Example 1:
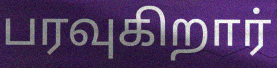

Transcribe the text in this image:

பரவுகிறார்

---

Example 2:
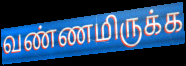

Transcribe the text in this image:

வண்ணமிருக்க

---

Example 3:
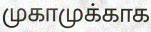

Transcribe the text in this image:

முகாமுக்காக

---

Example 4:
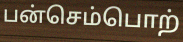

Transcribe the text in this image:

பன்செம்பொற்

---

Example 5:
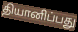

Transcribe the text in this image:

தியானிப்பது